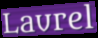
Laurel